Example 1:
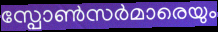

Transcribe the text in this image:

സ്പോൺസർമാരെയും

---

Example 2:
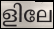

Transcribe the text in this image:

ളിലേ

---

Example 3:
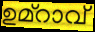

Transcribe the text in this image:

ഉമ്റാവ്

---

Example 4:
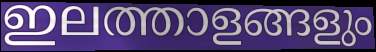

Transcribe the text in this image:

ഇലത്താളങ്ങളും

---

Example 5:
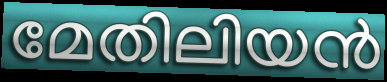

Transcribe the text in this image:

മേതിലിയൻ